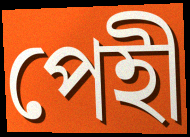
পেহী